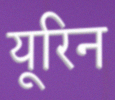
यूरिन